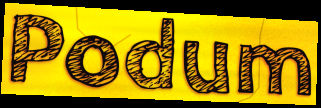
Podum